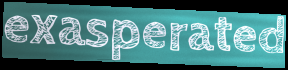
exasperated